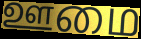
ஊமை